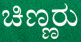
ಚಿಣ್ಣರು